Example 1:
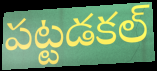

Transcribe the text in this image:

పట్టడకల్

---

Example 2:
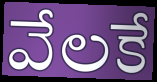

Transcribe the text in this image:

వేలకే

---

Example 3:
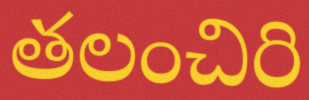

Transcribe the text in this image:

తలంచిరి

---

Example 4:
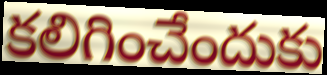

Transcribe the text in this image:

కలిగించేందుకు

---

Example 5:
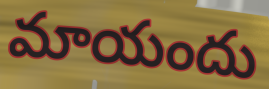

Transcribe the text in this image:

మాయందు